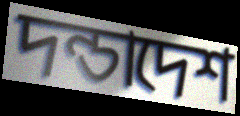
দন্ডাদেশ